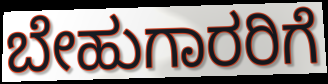
ಬೇಹುಗಾರರಿಗೆ